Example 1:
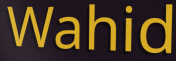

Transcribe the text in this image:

Wahid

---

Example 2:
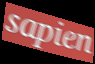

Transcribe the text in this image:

sapien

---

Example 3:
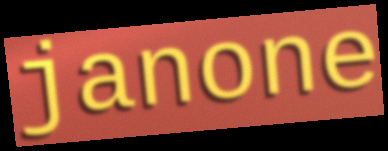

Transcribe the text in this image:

janone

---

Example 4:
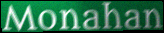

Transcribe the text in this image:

Monahan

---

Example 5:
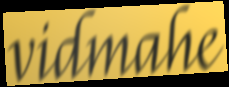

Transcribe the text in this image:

vidmahe